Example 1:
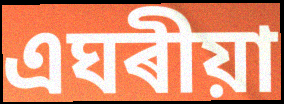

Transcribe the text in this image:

এঘৰীয়া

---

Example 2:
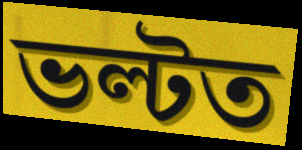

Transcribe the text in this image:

ভল্টত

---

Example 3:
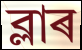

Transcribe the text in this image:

ব্লাৰ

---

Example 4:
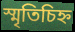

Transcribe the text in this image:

স্মৃতিচিহ্ন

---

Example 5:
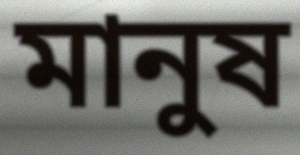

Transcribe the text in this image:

মানুষ